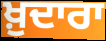
ਖ਼ੁਦਾਰਾ